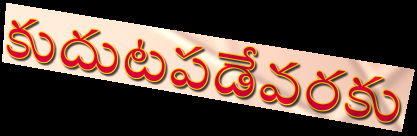
కుదుటపడేవరకు